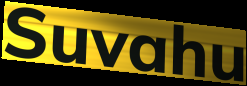
Suvahu